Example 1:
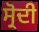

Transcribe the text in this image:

ਸ੍ਰੋਦੀ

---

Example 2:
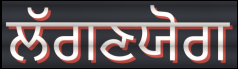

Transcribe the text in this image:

ਲੱਗਣਯੋਗ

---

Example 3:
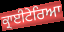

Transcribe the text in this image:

ਕ੍ਰਾਈਟੇਰਿਆ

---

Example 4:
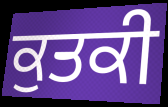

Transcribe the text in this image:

ਕੁਤਕੀ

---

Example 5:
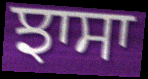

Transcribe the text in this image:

ਝਾਸਾ